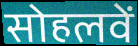
सोहलवें